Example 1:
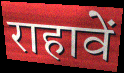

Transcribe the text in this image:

राहावें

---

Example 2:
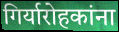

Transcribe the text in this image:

गिर्यारोहकांना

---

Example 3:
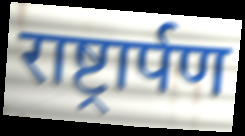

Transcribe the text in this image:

राष्ट्रार्पण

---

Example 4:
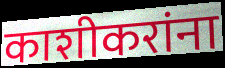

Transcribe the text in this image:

काशीकरांना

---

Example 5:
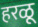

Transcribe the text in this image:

हरळू